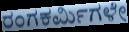
ರಂಗಕರ್ಮಿಗಳೇ